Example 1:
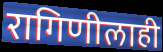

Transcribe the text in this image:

रागिणीलाही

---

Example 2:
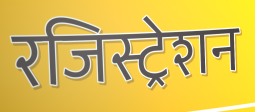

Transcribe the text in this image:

रजिस्ट्रेशन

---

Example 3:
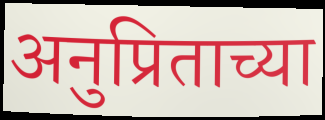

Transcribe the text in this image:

अनुप्रिताच्या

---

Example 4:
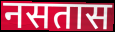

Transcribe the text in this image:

नसतास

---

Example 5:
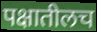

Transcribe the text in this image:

पक्षातीलच